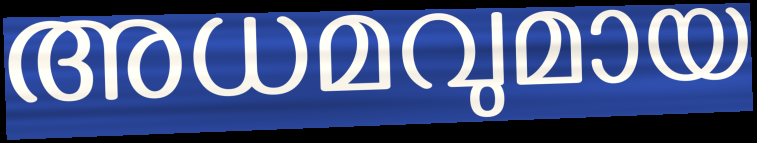
അധമവുമായ